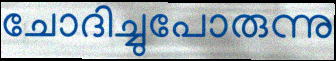
ചോദിച്ചുപോരുന്നു